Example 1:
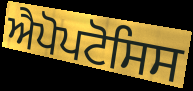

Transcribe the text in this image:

ਐਪੋਪਟੋਸਿਸ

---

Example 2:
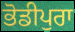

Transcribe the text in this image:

ਭੋਡੀਪੁਰਾ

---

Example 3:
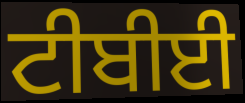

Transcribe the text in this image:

ਟੀਬੀਈ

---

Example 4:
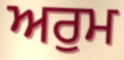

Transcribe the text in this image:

ਅਰੁਮ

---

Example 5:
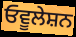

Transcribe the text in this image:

ਓਵੂਲੇਸ਼ਨ